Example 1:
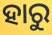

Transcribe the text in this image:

ହାରୁ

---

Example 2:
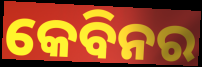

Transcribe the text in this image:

କେବିନର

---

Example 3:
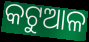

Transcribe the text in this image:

କଟୁଆଳ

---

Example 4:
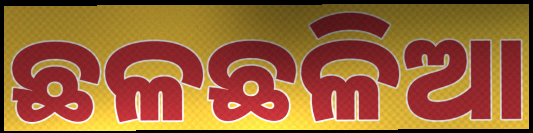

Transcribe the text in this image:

ଛଳଛଳିଆ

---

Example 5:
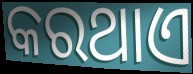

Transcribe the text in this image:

କରଥାଏ